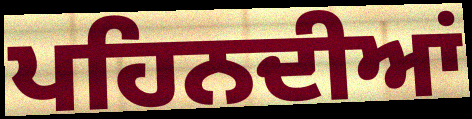
ਪਹਿਨਦੀਆਂ